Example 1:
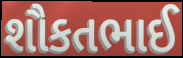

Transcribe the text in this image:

શૌકતભાઈ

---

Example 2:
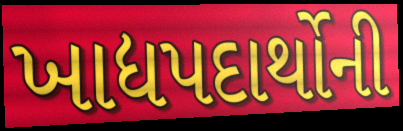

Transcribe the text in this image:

ખાદ્યપદાર્થોની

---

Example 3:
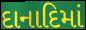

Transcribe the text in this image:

દાનાદિમાં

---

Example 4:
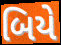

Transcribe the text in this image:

બિયે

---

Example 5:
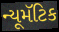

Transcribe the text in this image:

ન્યૂમૅટિક